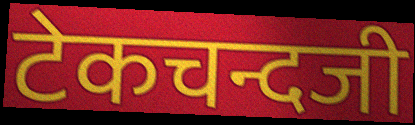
टेकचन्दजी